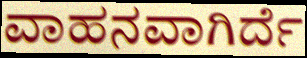
ವಾಹನವಾಗಿರ್ದೆ